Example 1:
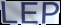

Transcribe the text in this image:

LEP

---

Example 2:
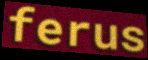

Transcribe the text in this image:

ferus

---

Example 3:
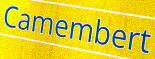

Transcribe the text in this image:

Camembert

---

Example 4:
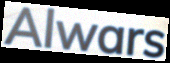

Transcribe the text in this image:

Alwars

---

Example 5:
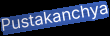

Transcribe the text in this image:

Pustakanchya